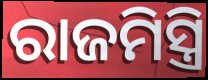
ରାଜମିସ୍ତ୍ରି